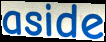
aside